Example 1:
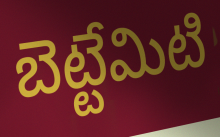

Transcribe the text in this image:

బెట్టేమిటి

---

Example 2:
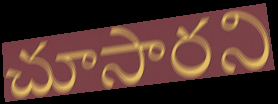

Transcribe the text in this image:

చూసారని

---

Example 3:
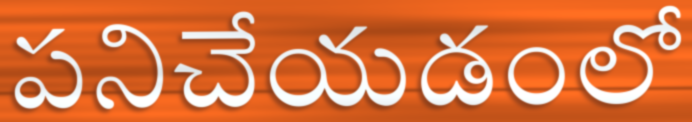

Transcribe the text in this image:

పనిచేయడంలో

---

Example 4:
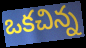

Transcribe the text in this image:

ఒకచిన్న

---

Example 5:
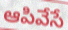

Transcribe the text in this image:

ఆపివేసే